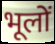
भूलों